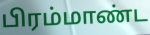
பிரம்மாண்ட